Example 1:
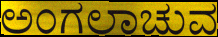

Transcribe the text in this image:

ಅಂಗಲಾಚುವ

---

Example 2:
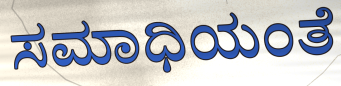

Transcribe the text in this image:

ಸಮಾಧಿಯಂತೆ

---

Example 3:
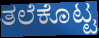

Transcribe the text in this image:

ತಲೆಕೊಟ್ಟ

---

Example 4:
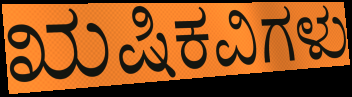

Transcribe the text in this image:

ಋಷಿಕವಿಗಳು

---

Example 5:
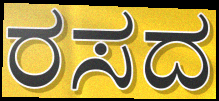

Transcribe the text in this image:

ರಸದ